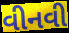
વીનવી